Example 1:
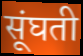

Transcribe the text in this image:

सूंघती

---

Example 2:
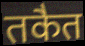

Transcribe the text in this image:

तकैत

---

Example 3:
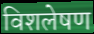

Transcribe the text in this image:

विशलेषण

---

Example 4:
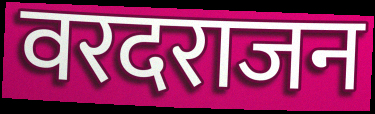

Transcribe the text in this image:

वरदराजन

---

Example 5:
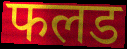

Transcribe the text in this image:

फलड